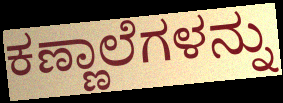
ಕಣ್ಣಾಲೆಗಳನ್ನು